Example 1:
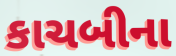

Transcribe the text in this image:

કાચબીના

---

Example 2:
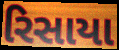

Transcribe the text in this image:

રિસાયા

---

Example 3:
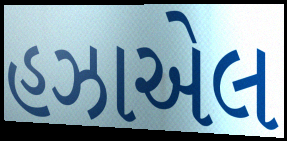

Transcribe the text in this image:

હઝાએલ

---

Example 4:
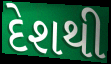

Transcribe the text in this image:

દેશથી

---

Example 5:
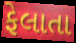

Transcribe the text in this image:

ફેલાતા